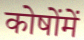
कोषोंमें